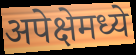
अपेक्षेमध्ये